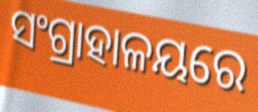
ସଂଗ୍ରାହାଳୟରେ